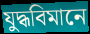
যুদ্ধবিমানে